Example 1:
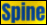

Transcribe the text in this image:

Spine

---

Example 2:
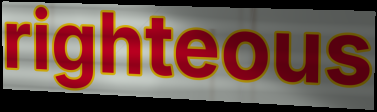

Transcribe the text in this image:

righteous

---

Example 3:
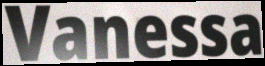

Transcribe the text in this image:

Vanessa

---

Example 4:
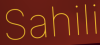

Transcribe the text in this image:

Sahili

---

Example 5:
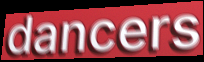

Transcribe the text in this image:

dancers